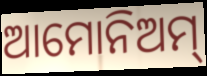
ଆମୋନିଅମ୍